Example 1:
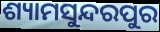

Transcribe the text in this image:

ଶ୍ୟାମସୁନ୍ଦରପୁର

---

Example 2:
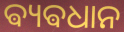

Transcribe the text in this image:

ଵ୍ୟଵଧାନ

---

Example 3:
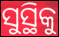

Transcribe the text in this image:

ସୁସ୍ଥିକୁ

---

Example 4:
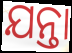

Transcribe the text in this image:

ଯନ୍ତା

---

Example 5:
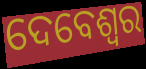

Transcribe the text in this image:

ଦେବେଶ୍ୱର